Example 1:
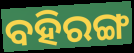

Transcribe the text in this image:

ବହିରଙ୍ଗ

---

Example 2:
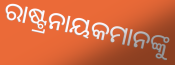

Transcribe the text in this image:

ରାଷ୍ଟ୍ରନାୟକମାନଙ୍କୁ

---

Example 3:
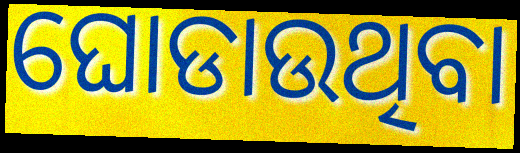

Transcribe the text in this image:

ଘୋଡାଉଥିବା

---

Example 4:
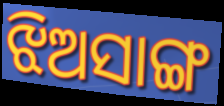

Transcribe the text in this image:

ଝିଅସାଙ୍ଗ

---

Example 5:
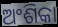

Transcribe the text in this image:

ଅଂଶିକା